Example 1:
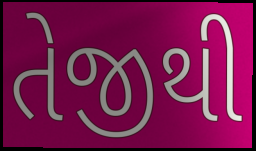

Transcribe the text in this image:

તેજીથી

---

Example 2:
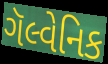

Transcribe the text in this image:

ગૅલ્વેનિક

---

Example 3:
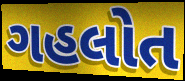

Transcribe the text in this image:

ગહલોત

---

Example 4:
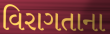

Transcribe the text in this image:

વિરાગતાના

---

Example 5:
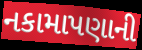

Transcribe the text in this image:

નકામાપણાની